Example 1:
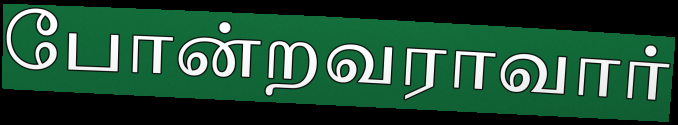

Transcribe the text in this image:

போன்றவராவார்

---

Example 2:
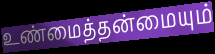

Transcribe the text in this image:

உண்மைத்தன்மையும்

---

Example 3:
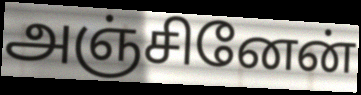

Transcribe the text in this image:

அஞ்சினேன்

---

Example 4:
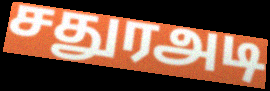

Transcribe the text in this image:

சதுரஅடி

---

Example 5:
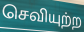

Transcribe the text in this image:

செவியுற்ற